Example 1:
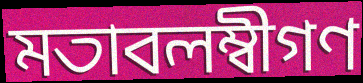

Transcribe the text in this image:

মতাবলম্বীগণ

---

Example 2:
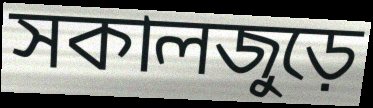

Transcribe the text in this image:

সকালজুড়ে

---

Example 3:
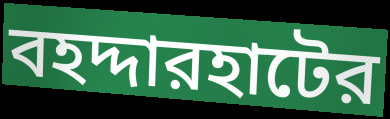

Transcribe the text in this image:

বহদ্দারহাটের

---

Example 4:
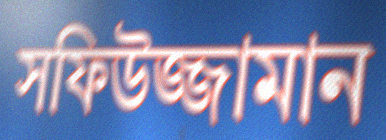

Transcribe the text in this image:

সফিউজ্জামান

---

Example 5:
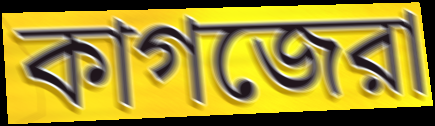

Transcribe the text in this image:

কাগজেরা